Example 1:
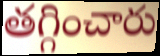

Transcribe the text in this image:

తగ్గించారు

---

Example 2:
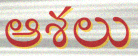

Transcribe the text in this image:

ఆశలు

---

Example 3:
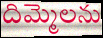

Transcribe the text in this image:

దిమ్మెలను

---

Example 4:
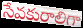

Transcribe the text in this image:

సేవకురాలిగా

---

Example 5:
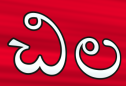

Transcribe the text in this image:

చిల